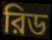
রিড